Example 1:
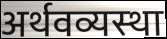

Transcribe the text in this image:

अर्थवव्यस्था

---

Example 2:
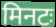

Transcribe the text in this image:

मिनटः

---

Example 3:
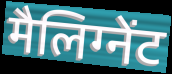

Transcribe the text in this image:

मैलिग्नेंट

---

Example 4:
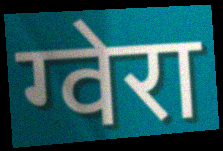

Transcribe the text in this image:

ग्वेरा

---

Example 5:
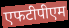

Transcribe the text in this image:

एफटीपीएम